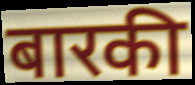
बारकी